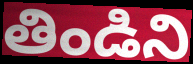
తిండిని